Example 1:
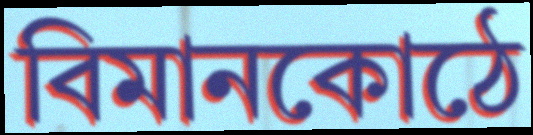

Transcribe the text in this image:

বিমানকোঠে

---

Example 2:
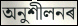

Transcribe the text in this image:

অনুশীলনৰ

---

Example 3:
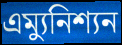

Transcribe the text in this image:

এম্যুনিশ্যন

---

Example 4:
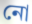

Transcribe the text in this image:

নো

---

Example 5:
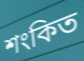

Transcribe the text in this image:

শংকিত